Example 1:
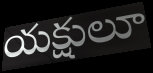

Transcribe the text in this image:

యక్షులూ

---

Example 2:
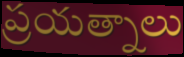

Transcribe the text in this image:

ప్రయత్నాలు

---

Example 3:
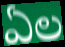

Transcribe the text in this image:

ఏల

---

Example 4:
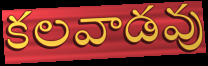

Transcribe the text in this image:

కలవాడవు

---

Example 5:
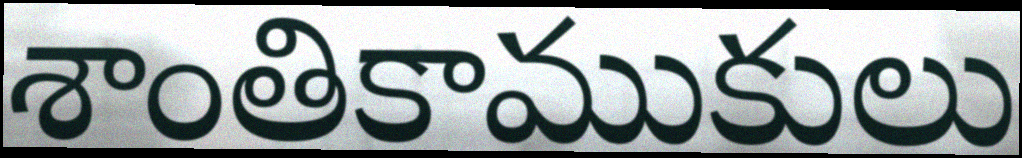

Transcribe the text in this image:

శాంతికాముకులు